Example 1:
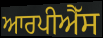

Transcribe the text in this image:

ਆਰਪੀਐੱਸ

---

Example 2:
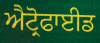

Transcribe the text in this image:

ਐਟ੍ਰੋਫਾਈਡ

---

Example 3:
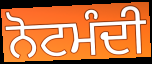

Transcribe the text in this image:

ਨੋਟਮੰਦੀ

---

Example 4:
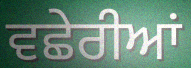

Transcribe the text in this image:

ਵਛੇਰੀਆਂ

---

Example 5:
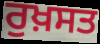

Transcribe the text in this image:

ਰੁਖ਼ਸਤ